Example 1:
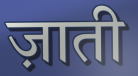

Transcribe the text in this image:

ज़ाती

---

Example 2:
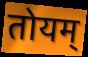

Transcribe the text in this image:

तोयम्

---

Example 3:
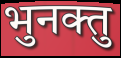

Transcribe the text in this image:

भुनक्तु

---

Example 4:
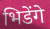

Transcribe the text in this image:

भिडेंगे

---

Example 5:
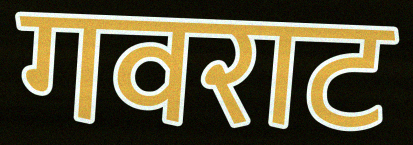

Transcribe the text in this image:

गवराट